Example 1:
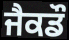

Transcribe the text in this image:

ਜੈਕਡੌ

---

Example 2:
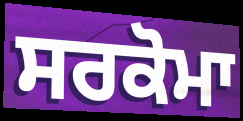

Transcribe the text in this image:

ਸਰਕੋਮਾ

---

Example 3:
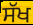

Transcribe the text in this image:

ਸੱਖ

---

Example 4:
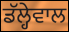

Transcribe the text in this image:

ਡੱਲ੍ਹੇਵਾਲ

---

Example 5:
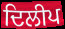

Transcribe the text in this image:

ਦਿਲੀਪ